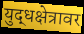
युद्धक्षेत्रावर